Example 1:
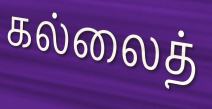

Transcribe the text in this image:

கல்லைத்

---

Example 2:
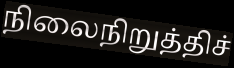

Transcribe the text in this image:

நிலைநிறுத்திச்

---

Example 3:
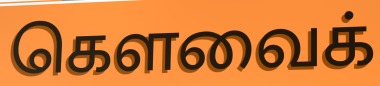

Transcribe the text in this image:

கௌவைக்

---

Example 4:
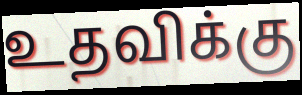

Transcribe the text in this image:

உதவிக்கு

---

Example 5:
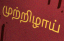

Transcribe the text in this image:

முற்றிழாய்